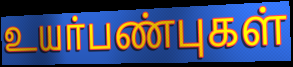
உயர்பண்புகள்